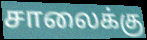
சாலைக்கு